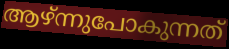
ആഴ്ന്നുപോകുന്നത്